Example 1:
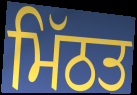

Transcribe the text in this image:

ਮਿੱਠਤ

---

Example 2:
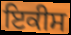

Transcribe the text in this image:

ਇਕੀਸ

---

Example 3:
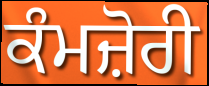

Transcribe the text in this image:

ਕੰਮਜ਼ੋਰੀ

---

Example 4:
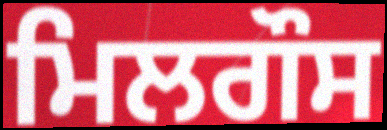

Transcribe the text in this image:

ਮਿਲਗੌਸ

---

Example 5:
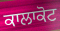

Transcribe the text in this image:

ਕਾਲਾਕੋਟ